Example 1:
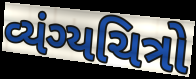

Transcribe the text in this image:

વ્યંગ્યચિત્રો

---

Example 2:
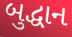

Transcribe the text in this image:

બુદ્ધાન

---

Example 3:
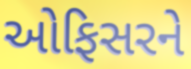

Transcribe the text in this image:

ઓફિસરને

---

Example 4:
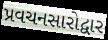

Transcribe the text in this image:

પ્રવચનસારોદ્વાર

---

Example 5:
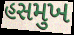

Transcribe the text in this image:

હસમુખ